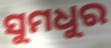
ସୁମଧୁର